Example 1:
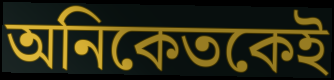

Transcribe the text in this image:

অনিকেতকেই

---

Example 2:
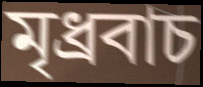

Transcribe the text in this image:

মৃধ্রবাচ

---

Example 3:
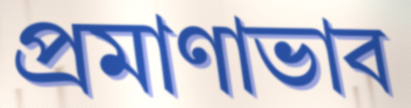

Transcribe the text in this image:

প্রমাণাভাব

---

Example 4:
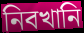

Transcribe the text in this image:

নিবখানি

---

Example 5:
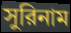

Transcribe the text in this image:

সুরিনাম